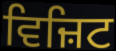
ਵਿਜ਼ਿਟ